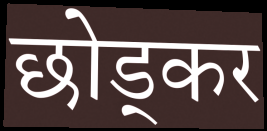
छोड्कर